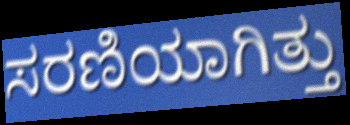
ಸರಣಿಯಾಗಿತ್ತು